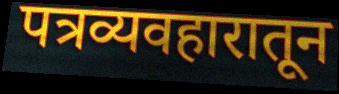
पत्रव्यवहारातून